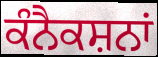
ਕੰਨੈਕਸ਼ਨਾਂ